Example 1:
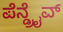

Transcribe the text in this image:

ಪೆನ್ಡ್ರೈವ್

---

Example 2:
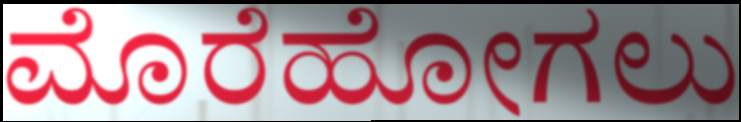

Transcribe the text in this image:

ಮೊರೆಹೋಗಲು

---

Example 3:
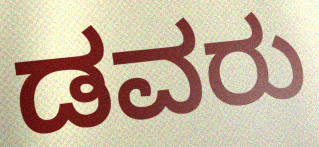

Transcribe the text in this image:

ಡವರು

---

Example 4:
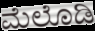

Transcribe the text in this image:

ಮೆಲೊಡಿ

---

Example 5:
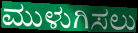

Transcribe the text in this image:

ಮುಳುಗಿಸಲು